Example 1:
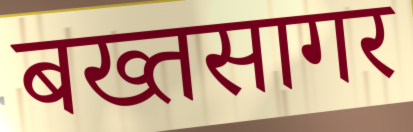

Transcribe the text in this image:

बख्तसागर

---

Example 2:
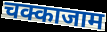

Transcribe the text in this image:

चक्काजाम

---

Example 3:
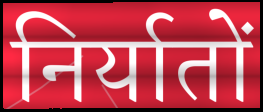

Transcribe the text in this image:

निर्यातों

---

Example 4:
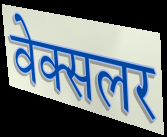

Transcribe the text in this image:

वेक्सलर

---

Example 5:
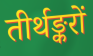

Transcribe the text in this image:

तीर्थङ्करों